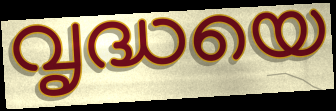
വൃദ്ധയെ